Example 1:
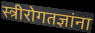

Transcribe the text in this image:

स्त्रीरोगतज्ञांना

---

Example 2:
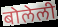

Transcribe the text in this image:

बोलेली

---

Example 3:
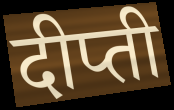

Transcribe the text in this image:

दीप्ती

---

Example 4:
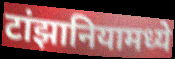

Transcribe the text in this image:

टांझानियामध्ये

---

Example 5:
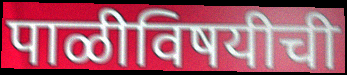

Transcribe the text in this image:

पाळीविषयीची